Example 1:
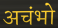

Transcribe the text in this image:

अचंभो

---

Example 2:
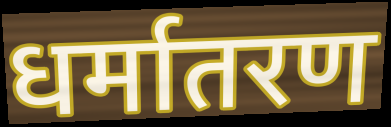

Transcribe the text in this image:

धर्मातरण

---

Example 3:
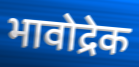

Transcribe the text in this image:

भावोद्रेक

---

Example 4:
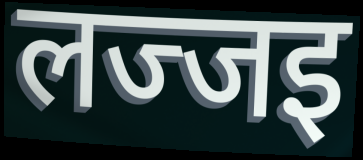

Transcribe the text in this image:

लज्जइ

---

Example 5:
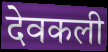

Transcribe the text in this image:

देवकली